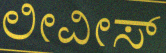
ಲೀವೀಸ್